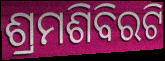
ଶ୍ରମଶିବିରଟି